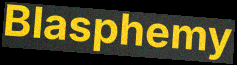
Blasphemy